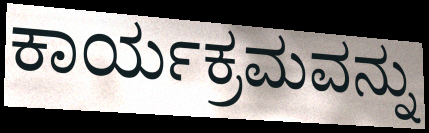
ಕಾರ್ಯಕ್ರಮವನ್ನು